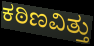
ಕಠಿಣವಿತ್ತು